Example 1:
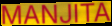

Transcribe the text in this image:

MANJITA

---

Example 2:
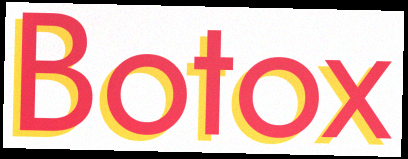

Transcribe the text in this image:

Botox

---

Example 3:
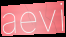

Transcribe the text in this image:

aevi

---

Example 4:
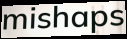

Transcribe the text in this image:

mishaps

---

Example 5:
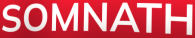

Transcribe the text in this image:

SOMNATH